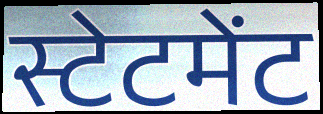
स्टेटमेंट